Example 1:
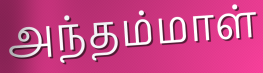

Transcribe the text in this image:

அந்தம்மாள்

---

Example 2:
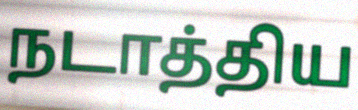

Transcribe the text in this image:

நடாத்திய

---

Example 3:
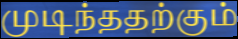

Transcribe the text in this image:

முடிந்ததற்கும்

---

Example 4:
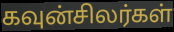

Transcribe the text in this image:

கவுன்சிலர்கள்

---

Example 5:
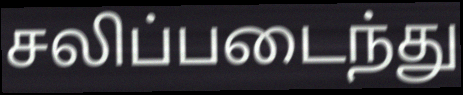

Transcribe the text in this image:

சலிப்படைந்து